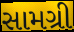
સામગ્રી